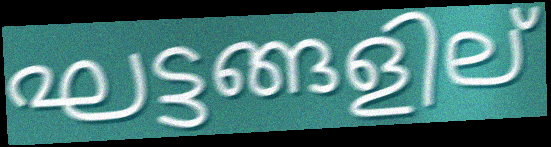
ഘട്ടങ്ങളില്